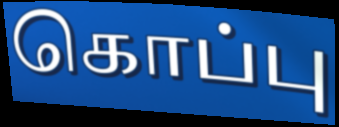
கொப்பு